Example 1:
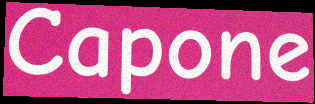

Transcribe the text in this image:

Capone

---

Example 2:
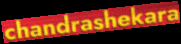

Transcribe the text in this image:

chandrashekara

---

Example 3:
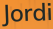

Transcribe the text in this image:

Jordi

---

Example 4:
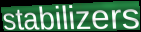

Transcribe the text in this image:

stabilizers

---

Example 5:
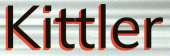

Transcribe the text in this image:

Kittler